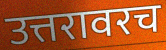
उत्तरावरच